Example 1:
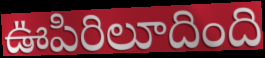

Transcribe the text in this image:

ఊపిరిలూదింది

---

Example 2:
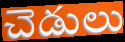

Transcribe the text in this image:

చెడులు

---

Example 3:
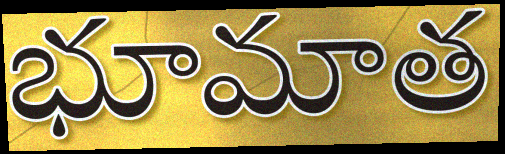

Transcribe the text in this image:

భూమాత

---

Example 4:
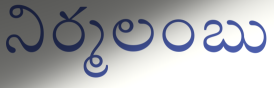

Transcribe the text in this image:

నిర్మలంబు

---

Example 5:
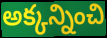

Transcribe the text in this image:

అక్కన్నించి